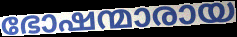
ഭോഷന്മാരായ